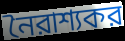
নৈরাশ্যকর